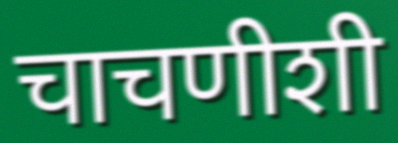
चाचणीशी